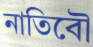
নাতিবৌ